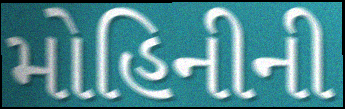
મોહિનીની